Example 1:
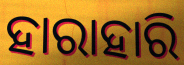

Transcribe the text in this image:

ହାରାହାରି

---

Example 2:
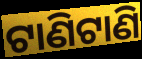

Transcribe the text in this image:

ଟାଣିଟାଣି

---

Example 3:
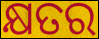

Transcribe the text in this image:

କ୍ଷତର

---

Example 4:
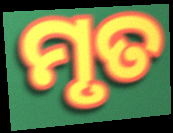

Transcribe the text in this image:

ମୃତ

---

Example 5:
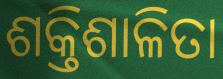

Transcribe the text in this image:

ଶକ୍ତିଶାଳିତା